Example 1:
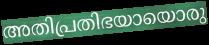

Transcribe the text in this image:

അതിപ്രതിഭയായൊരു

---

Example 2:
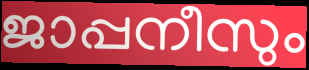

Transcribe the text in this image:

ജാപ്പനീസും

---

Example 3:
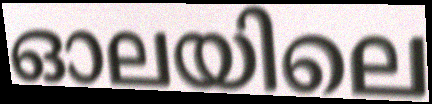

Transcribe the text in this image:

ഓലയിലെ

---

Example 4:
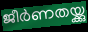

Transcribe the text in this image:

ജീർണതയ്ക്കു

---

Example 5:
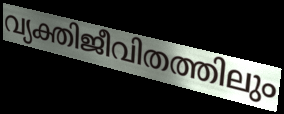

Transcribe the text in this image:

വ്യക്തിജീവിതത്തിലും